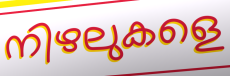
നിഴലുകളെ